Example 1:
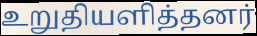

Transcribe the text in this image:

உறுதியளித்தனர்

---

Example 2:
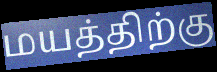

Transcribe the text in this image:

மயத்திற்கு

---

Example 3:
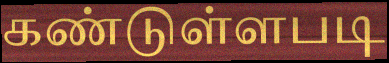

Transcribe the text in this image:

கண்டுள்ளபடி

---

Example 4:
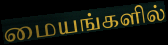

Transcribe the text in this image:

மையங்களில்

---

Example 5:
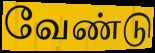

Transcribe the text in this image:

வேண்டு